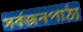
সর্বজনপাঠ্য